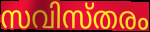
സവിസ്തരം